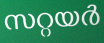
സറ്റയർ